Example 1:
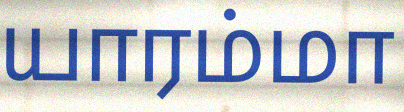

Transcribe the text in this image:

யாரம்மா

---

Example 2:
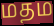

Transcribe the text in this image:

மதம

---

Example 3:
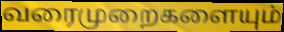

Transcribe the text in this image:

வரைமுறைகளையும்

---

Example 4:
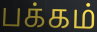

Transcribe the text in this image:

பக்கம்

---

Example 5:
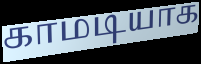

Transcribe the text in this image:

காமடியாக